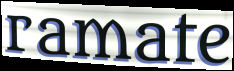
ramate